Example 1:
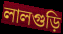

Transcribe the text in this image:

লালগুড়ি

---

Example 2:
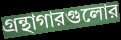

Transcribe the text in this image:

গ্রন্থাগারগুলোর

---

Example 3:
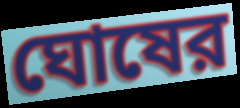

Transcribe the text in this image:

ঘোষের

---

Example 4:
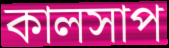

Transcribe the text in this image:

কালসাপ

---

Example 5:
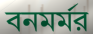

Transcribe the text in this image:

বনমর্মর